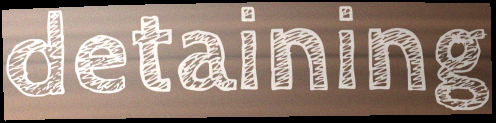
detaining